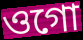
ওগো